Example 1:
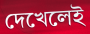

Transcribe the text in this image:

দেখেলেই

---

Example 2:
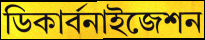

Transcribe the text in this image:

ডিকার্বনাইজেশন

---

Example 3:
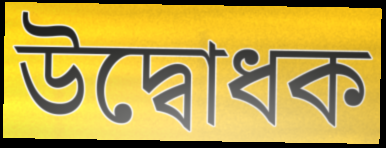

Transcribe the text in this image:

উদ্বোধক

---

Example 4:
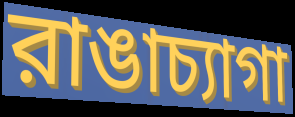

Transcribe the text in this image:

রাঙাচ্যাগা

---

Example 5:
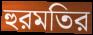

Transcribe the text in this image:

হুরমতির